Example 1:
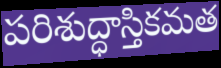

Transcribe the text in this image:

పరిశుద్ధాస్తికమత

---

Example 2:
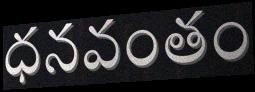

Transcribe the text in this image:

ధనవంతం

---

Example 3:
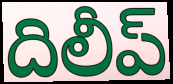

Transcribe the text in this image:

దిలీప్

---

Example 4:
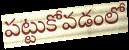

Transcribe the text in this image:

పట్టుకోవడంలో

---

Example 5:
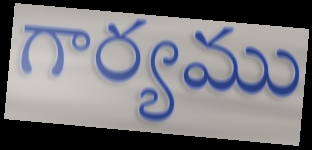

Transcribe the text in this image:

గార్యము